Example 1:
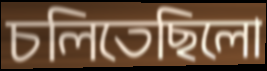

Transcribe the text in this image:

চলিতেছিলো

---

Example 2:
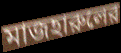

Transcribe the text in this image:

মাজহারুলের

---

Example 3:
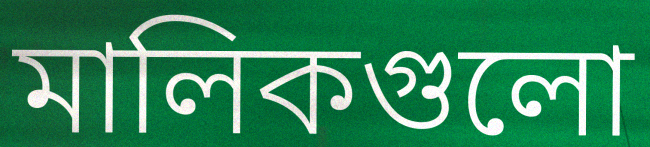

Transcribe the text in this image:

মালিকগুলো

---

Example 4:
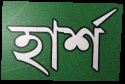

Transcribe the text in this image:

হার্শ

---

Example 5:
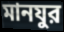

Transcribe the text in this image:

মানযুর